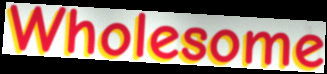
Wholesome